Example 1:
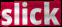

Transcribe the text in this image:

slick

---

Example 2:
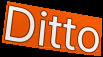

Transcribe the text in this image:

Ditto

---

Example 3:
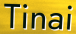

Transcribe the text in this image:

Tinai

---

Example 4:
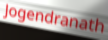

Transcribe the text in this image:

Jogendranath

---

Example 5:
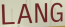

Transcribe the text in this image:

LANG